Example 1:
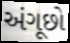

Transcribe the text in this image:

અંગૂછો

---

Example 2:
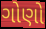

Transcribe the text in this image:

ગોણો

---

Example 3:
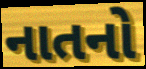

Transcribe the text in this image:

નાતનો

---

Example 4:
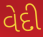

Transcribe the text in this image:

વેદી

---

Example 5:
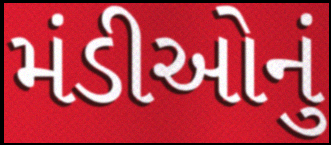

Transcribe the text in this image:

મંડીઓનું